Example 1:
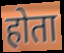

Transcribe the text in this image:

होता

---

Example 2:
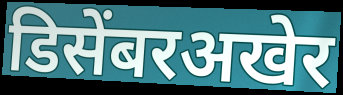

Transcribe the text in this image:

डिसेंबरअखेर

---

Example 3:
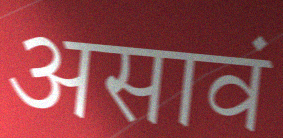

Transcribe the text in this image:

असावं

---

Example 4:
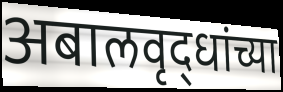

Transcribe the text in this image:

अबालवृद्धांच्या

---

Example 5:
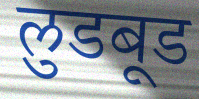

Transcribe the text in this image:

लुडबूड